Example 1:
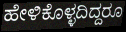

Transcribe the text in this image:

ಹೇಳಿಕೊಳ್ಳದಿದ್ದರೂ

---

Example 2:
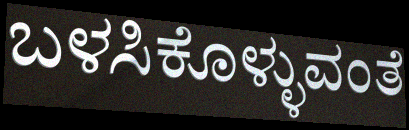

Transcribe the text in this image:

ಬಳಸಿಕೊಳ್ಳುವಂತೆ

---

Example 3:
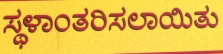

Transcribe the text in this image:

ಸ್ಥಳಾಂತರಿಸಲಾಯಿತು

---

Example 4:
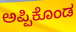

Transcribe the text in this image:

ಅಪ್ಪಿಕೊಂಡ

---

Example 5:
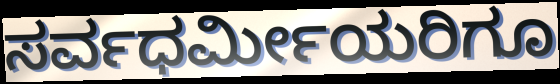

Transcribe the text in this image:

ಸರ್ವಧರ್ಮೀಯರಿಗೂ